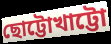
ছোট্টোখাট্টো